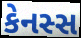
કેનસ્સ